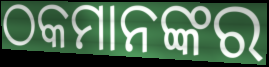
ଠକମାନଙ୍କର